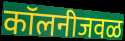
कॉलनीजवळ